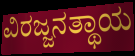
ವಿರಜ್ಜನತ್ಥಾಯ